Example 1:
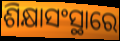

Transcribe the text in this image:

ଶିକ୍ଷାସଂସ୍ଥାରେ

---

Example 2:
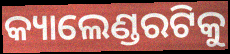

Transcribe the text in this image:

କ୍ୟାଲେଣ୍ଡରଟିକୁ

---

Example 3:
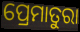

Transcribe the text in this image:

ପ୍ରେମାତୁରା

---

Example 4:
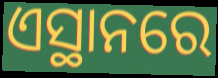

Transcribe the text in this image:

ଏସ୍ଥାନରେ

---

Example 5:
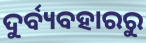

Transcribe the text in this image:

ଦୁର୍ବ୍ୟବହାରରୁ